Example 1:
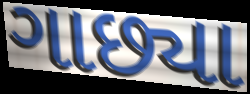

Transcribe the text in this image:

ગાછ્યા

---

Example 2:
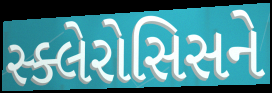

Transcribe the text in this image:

સ્ક્લેરોસિસને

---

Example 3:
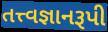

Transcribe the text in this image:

તત્ત્વજ્ઞાનરૂપી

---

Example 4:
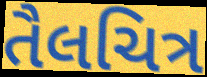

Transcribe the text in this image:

તૈલચિત્ર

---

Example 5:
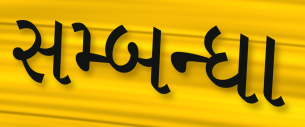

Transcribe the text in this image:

સમ્બન્ધા